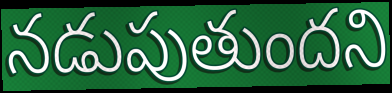
నడుపుతుందని